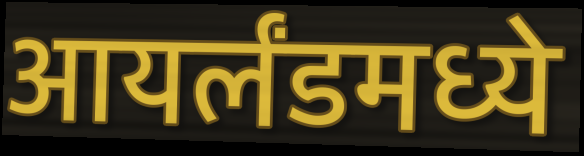
आयर्लंडमध्ये